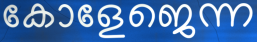
കോളേജെന്ന